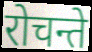
रोचन्ते